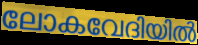
ലോകവേദിയിൽ